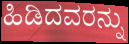
ಹಿಡಿದವರನ್ನು